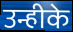
उन्हीके